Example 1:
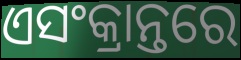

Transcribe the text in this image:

ଏସଂକ୍ରାନ୍ତରେ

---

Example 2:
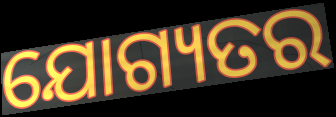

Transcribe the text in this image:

ଯୋଗ୍ୟତର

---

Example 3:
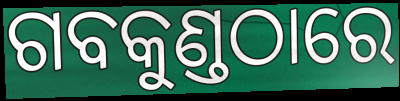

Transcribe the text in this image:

ଗବକୁଣ୍ଡଠାରେ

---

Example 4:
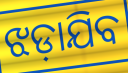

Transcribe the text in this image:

ଝଡ଼ାଯିବ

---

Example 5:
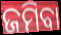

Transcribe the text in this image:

ଜମିବା